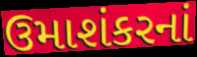
ઉમાશંકરનાં